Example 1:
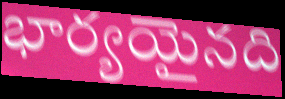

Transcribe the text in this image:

భార్యయైనది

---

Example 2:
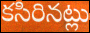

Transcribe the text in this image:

కసిరినట్లు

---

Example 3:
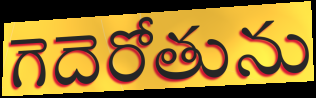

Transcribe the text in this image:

గెదెరోతును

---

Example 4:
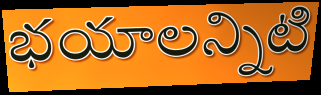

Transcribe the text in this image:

భయాలన్నిటి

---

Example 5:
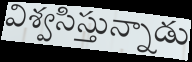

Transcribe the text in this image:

విశ్వసిస్తున్నాడు